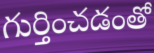
గుర్తించడంతో